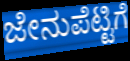
ಜೇನುಪೆಟ್ಟಿಗೆ